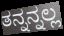
ತನ್ನನ್ನಲ್ಲ